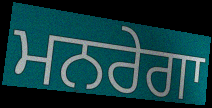
ਮਨਰੇਗਾ